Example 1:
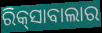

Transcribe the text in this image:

ରିକ୍‌ସାବାଲାର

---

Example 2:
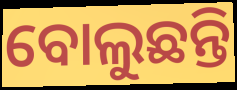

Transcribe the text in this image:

ବୋଲୁଛନ୍ତି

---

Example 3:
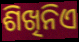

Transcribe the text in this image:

ଶିଖିନିଏ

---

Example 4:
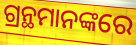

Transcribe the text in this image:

ଗ୍ରନ୍ଥମାନଙ୍କରେ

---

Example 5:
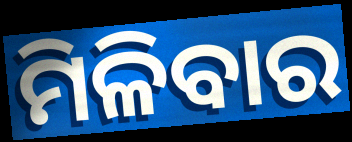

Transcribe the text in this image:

ମିଳିବାର